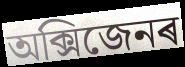
অক্সিজেনৰ